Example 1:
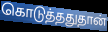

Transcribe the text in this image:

கொடுத்ததுதான்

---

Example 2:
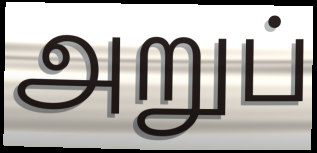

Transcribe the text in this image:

அறுப்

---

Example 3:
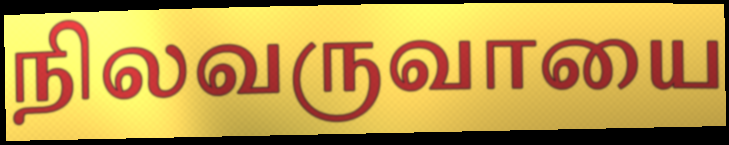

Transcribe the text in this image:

நிலவருவாயை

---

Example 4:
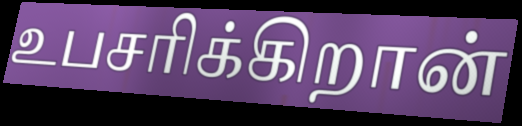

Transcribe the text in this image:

உபசரிக்கிறான்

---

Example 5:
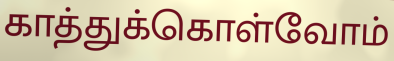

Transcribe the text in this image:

காத்துக்கொள்வோம்